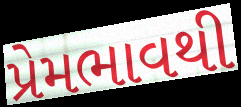
પ્રેમભાવથી